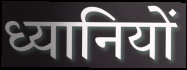
ध्यानियों